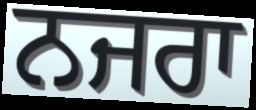
ਨਜਰਾ